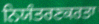
ਨਿਯੰਤਰਣਕਰਤਾ